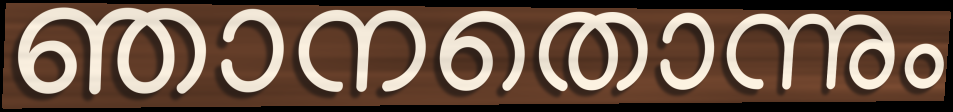
ഞാനതൊന്നും